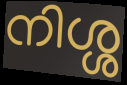
നിശ്ശ